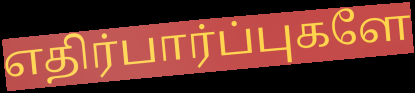
எதிர்பார்ப்புகளே